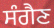
ਸੰਗੈਣ